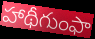
హాథీగుంఫా